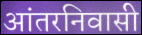
आंतरनिवासी